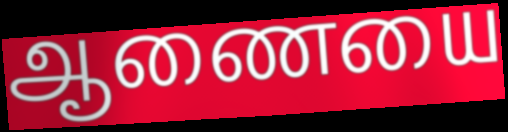
ஆணையை